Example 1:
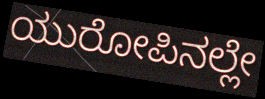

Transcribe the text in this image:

ಯುರೋಪಿನಲ್ಲೇ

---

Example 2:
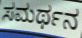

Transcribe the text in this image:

ಸಮರ್ಥನ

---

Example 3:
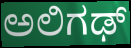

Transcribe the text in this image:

ಅಲಿಗಢ್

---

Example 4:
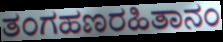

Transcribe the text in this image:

ತಂಗಹಣರಹಿತಾನಂ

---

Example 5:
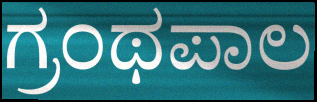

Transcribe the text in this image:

ಗ್ರಂಥಪಾಲ